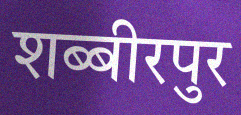
शब्‍बीरपुर